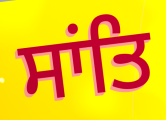
ਸਾਂਤਿ